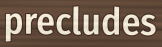
precludes